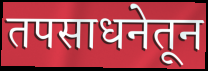
तपसाधनेतून